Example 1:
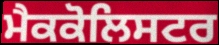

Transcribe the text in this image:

ਮੈਕਕੋਲਿਸਟਰ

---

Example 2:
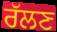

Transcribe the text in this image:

ਰੱਲਣ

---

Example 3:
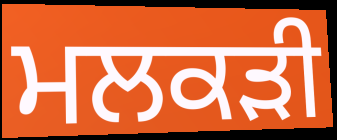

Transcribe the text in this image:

ਮਲਕੜੀ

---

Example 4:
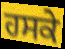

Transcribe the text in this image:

ਹਸਕੇ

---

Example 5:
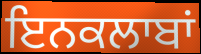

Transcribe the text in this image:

ਇਨਕਲਾਬਾਂ